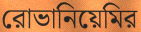
রোভানিয়েমির